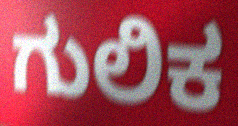
ಗುಲಿಕ